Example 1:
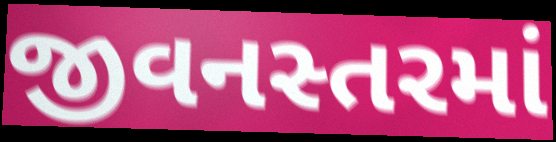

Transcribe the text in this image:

જીવનસ્તરમાં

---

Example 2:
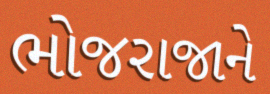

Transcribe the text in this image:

ભોજરાજાને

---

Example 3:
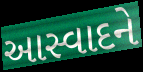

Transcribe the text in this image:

આસ્વાદને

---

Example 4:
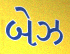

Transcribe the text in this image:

બેઝ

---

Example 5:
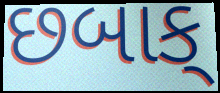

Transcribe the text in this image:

છબાક્